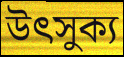
উৎসুক্য